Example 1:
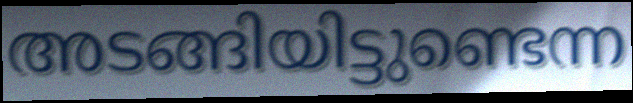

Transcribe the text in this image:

അടങ്ങിയിട്ടുണ്ടെന്ന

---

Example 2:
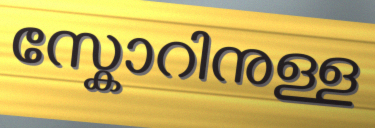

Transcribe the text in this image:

സ്കോറിനുള്ള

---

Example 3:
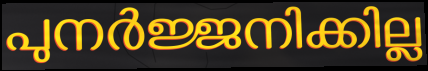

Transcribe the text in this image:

പുനർജ്ജനിക്കില്ല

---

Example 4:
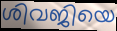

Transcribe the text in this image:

ശിവജിയെ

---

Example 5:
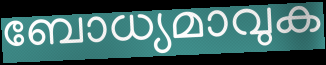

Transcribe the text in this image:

ബോധ്യമാവുക